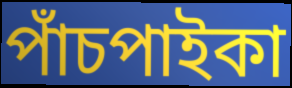
পাঁচপাইকা